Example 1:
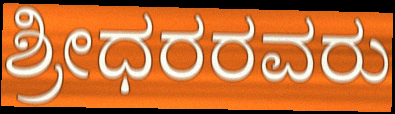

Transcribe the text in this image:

ಶ್ರೀಧರರವರು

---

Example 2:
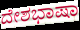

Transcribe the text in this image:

ದೇಶಭಾಷಾ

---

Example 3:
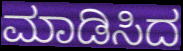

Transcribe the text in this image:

ಮಾಡಿಸಿದ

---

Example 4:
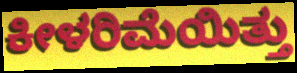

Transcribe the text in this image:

ಕೀಳರಿಮೆಯಿತ್ತು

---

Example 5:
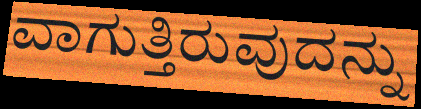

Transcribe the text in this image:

ವಾಗುತ್ತಿರುವುದನ್ನು